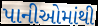
પાનીઓમાંથી